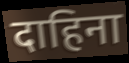
दाहिना